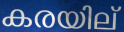
കരയില്